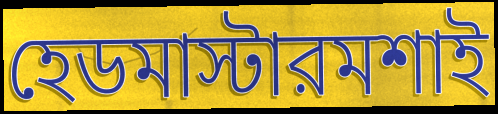
হেডমাস্টারমশাই